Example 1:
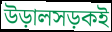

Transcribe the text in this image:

উড়ালসড়কই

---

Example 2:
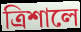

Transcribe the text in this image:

ত্রিশালে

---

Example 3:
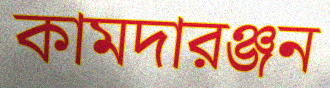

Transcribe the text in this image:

কামদারঞ্জন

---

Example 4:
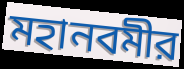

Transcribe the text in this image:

মহানবমীর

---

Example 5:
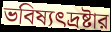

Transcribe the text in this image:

ভবিষ্যৎদ্রষ্টার